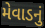
મેવાડનું